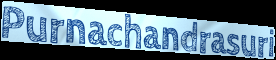
Purnachandrasuri